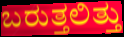
ಬರುತ್ತಲಿತ್ತು